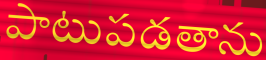
పాటుపడతాను